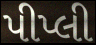
પીપ્લી